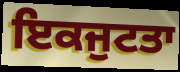
ਇਕਜੁਟਤਾ